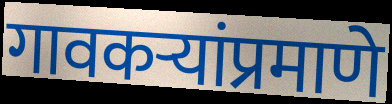
गावकऱ्यांप्रमाणे